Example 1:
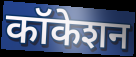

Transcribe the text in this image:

कॉकेशन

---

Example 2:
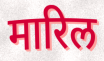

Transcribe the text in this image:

मारिल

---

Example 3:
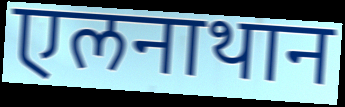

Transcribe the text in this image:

एलनाथान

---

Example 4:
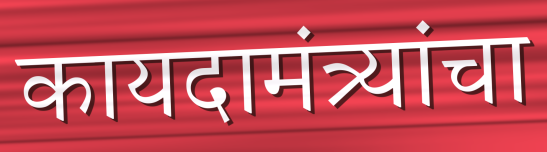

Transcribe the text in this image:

कायदामंत्र्यांचा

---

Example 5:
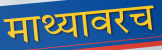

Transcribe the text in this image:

माथ्यावरच